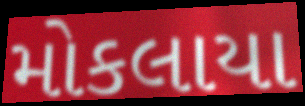
મોકલાયા